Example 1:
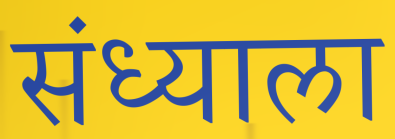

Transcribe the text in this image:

संध्याला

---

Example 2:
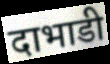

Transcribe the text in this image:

दाभाडी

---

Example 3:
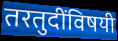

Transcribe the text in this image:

तरतुदींविषयी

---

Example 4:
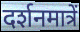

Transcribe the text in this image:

दर्शनमात्रें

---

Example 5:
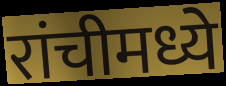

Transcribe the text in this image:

रांचीमध्ये